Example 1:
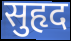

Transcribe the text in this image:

सुहृद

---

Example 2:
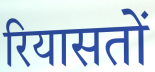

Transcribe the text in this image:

रियासतों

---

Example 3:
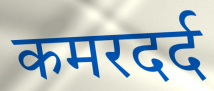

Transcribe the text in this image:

कमरदर्द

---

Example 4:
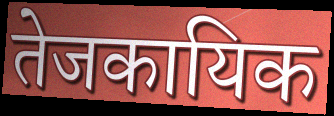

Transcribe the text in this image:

तेजकायिक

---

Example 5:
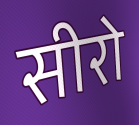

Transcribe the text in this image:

सीरो